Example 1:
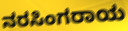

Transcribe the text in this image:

ನರಸಿಂಗರಾಯ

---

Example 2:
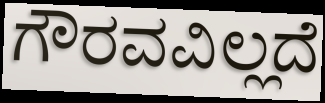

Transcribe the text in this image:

ಗೌರವವಿಲ್ಲದೆ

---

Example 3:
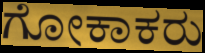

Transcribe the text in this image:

ಗೋಕಾಕರು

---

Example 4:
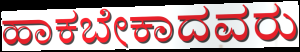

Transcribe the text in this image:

ಹಾಕಬೇಕಾದವರು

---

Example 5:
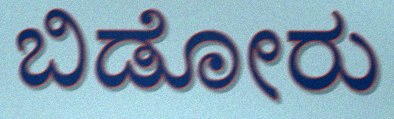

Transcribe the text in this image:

ಬಿಡೋರು